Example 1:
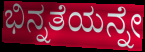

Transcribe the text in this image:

ಭಿನ್ನತೆಯನ್ನೇ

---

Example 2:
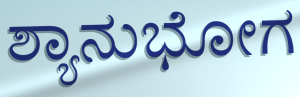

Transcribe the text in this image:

ಶ್ಯಾನುಭೋಗ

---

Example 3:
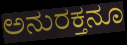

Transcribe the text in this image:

ಅನುರಕ್ತನೂ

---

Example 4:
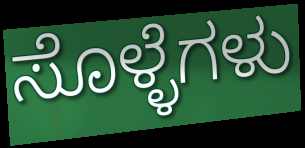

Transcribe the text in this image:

ಸೊಳ್ಳೆಗಳು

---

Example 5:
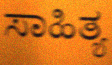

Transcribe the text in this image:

ಸಾಹಿತ್ಯ